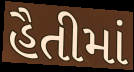
હૈતીમાં